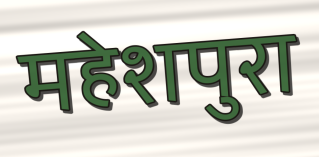
महेशपुरा